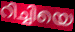
റിച്ചിയെ